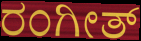
ರಂಗೀತ್